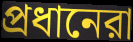
প্রধানেরা